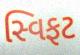
સ્વિફટ